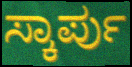
ಸ್ಕಾರ್ಪು